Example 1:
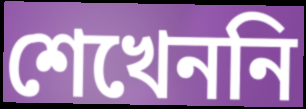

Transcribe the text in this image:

শেখেননি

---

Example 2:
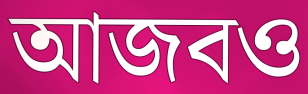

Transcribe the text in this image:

আজবও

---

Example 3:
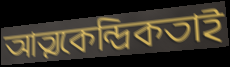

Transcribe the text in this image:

আত্মকেন্দ্রিকতাই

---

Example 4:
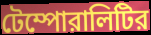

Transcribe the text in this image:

টেম্পোরালিটির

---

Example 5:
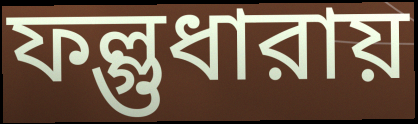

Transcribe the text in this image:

ফল্গুধারায়